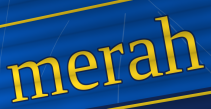
merah